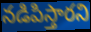
నడిపిస్తారని